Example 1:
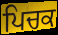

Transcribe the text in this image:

ਪਿਚਕ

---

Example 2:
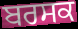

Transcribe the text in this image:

ਬਰਸਕ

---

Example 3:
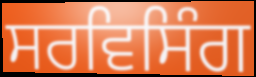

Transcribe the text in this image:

ਸਰਵਿਸਿੰਗ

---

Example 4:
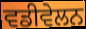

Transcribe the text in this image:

ਵਡੀਵੇਲਨ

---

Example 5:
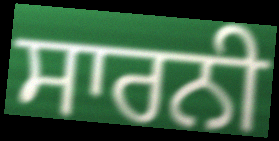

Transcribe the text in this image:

ਸਾਰਨੀ